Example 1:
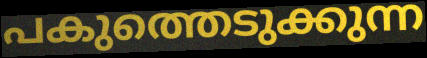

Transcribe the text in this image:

പകുത്തെടുക്കുന്ന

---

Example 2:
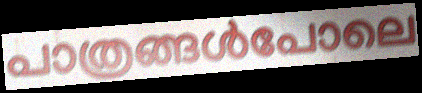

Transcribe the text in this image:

പാത്രങ്ങൾപോലെ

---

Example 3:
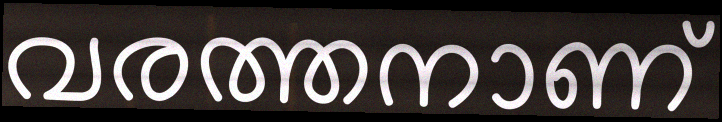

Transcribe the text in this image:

വരത്തനാണ്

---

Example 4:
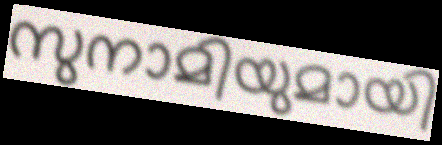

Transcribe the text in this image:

സുനാമിയുമായി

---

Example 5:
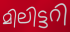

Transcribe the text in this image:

മിലിട്ടറി